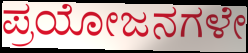
ಪ್ರಯೋಜನಗಳೇ